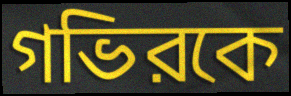
গভিরকে